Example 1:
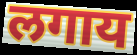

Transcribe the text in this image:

लगाय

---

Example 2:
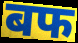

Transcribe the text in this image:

बफ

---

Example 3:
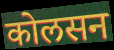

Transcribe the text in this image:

कोलसन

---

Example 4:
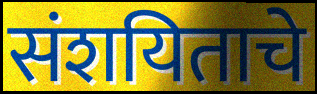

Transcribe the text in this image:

संशयिताचे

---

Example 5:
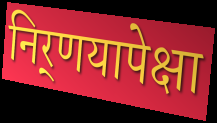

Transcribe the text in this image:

निर्णयापेक्षा